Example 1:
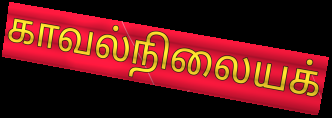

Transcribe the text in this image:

காவல்நிலையக்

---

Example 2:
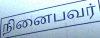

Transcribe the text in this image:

நினைபவர்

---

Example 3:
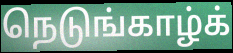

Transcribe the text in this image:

நெடுங்காழ்க்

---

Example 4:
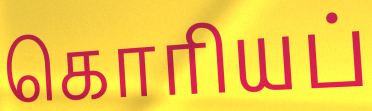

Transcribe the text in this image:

கொரியப்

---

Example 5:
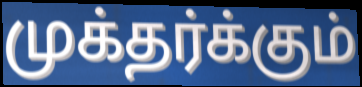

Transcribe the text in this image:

முக்தர்க்கும்